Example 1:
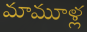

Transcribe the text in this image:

మామూళ్ల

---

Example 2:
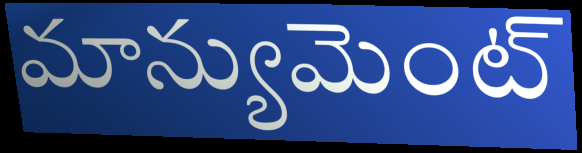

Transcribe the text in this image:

మాన్యుమెంట్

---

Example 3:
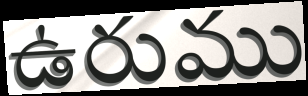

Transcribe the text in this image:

ఉరుము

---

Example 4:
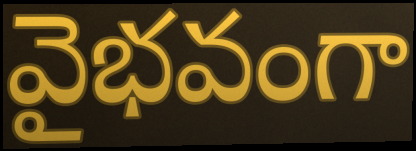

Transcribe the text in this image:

వైభవంగా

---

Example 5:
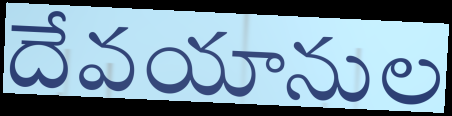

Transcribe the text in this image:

దేవయానుల